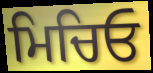
ਮਿਚਿਓ